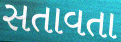
સતાવતા